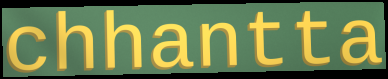
chhantta